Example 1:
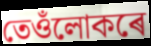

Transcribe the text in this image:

তেওঁলোকৰে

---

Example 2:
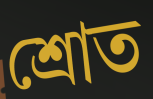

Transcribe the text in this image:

শ্ৰোত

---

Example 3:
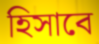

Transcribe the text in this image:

হিসাবে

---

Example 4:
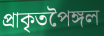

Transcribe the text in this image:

প্ৰাকৃতপৈঙ্গল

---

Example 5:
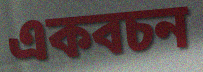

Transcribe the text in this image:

একবচন